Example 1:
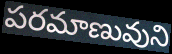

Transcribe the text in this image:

పరమాణువుని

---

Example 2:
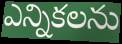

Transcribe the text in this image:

ఎన్నికలను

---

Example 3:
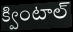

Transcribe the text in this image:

క్వింటాల్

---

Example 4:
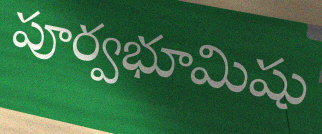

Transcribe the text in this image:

పూర్వభూమిషు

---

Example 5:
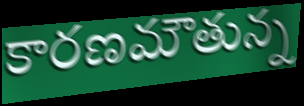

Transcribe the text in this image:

కారణమౌతున్న